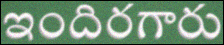
ఇందిరగారు